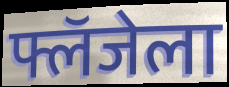
फ्लॅजेला